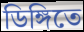
ডিঙ্গিতে